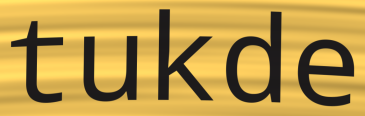
tukde